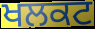
ਖਲਕਟ